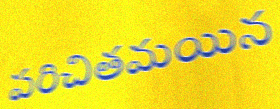
పరిచితమయిన